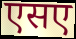
एसए